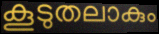
കൂടുതലാകും